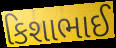
કિશાભાઈ